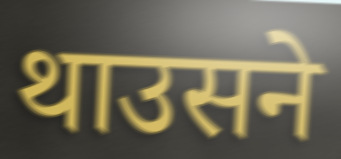
थाउसने